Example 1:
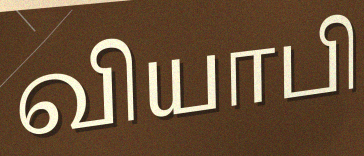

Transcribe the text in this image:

வியாபி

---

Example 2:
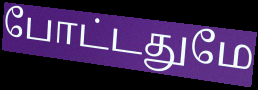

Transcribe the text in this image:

போட்டதுமே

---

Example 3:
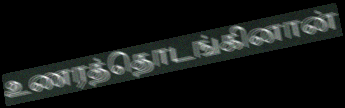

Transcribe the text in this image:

உணரத்தொடங்கினான்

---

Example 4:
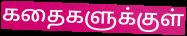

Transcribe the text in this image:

கதைகளுக்குள்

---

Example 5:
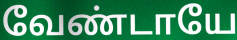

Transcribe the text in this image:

வேண்டாயே